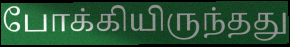
போக்கியிருந்தது